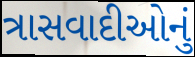
ત્રાસવાદીઓનું